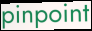
pinpoint